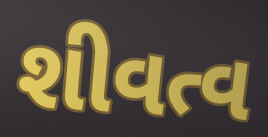
શીવત્વ